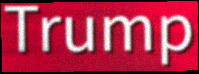
Trump